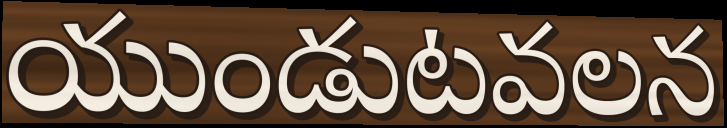
యుండుటవలన